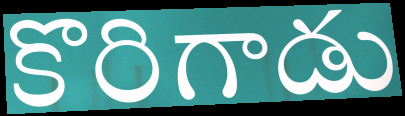
కొరిగాడు